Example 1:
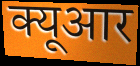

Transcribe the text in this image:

क्यूआर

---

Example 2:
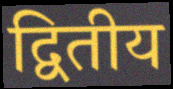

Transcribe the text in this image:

द्वितीय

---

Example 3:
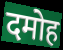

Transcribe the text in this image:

दमोह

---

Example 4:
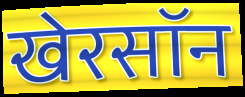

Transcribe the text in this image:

खेरसॉन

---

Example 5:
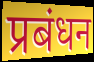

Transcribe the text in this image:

प्रबंधन